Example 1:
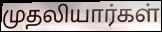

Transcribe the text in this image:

முதலியார்கள்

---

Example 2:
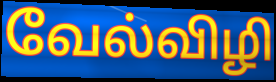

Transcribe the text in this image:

வேல்விழி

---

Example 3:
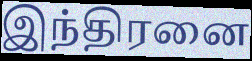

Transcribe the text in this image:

இந்திரனை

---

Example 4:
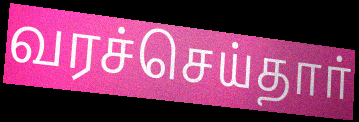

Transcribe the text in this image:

வரச்செய்தார்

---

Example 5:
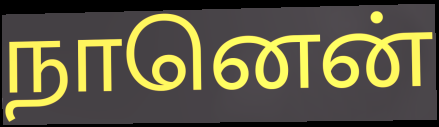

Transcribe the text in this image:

நானென்